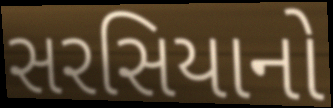
સરસિયાનો